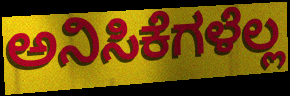
ಅನಿಸಿಕೆಗಳೆಲ್ಲ